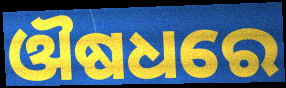
ଔଷଧରେ